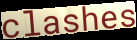
clashes